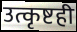
उत्कृष्टही